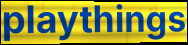
playthings